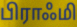
பிராஃமி